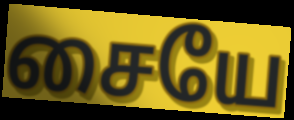
சையே